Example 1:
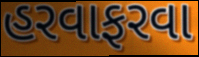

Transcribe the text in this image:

હરવાફરવા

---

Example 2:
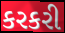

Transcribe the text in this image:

કરકરી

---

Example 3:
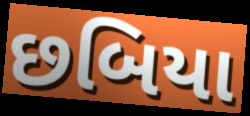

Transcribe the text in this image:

છબિયા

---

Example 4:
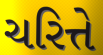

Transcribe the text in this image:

ચરિત્તે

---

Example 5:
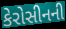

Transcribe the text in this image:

કેરોસીનની